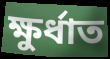
ক্ষুর্ধাত